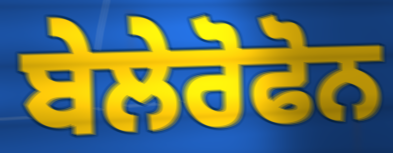
ਬੇਲੇਰੋਫੋਨ